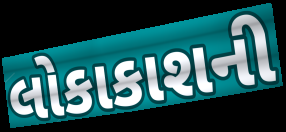
લોકાકાશની